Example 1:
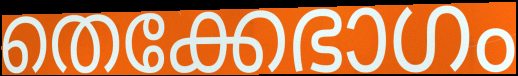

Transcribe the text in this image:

തെക്കേഭാഗം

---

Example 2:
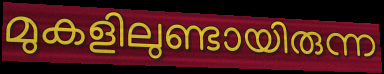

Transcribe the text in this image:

മുകളിലുണ്ടായിരുന്ന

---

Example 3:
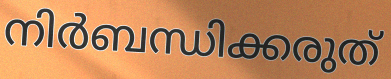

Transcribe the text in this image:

നിർബന്ധിക്കരുത്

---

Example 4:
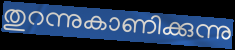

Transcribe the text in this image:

തുറന്നുകാണിക്കുന്നു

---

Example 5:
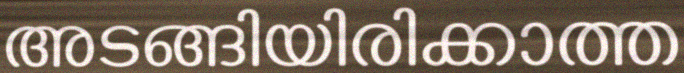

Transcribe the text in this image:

അടങ്ങിയിരിക്കാത്ത